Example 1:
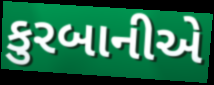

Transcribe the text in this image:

કુરબાનીએ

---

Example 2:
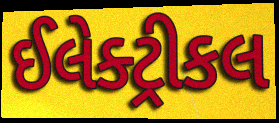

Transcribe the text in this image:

ઈલેક્ટ્રીકલ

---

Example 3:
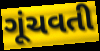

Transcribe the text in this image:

ગૂંચવતી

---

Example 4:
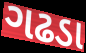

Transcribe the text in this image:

ગઢડા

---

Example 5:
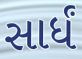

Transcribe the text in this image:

સાર્ધં